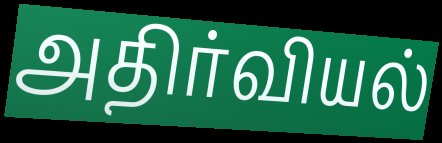
அதிர்வியல்